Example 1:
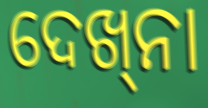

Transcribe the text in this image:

ଦେଖ୍‌ନା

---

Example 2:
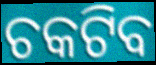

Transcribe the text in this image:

ଚକଟିବ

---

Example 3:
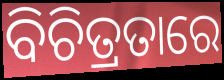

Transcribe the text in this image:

ବିଚିତ୍ରତାରେ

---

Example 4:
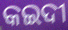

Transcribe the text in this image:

କଇଦୀ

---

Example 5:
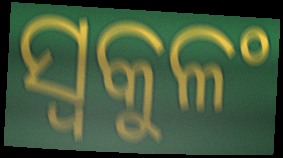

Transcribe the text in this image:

ସ୍ୱକୁଳଂ